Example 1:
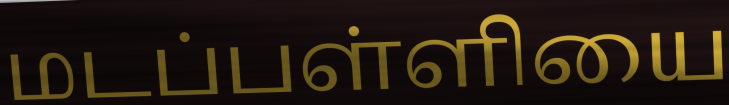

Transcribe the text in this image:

மடப்பள்ளியை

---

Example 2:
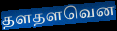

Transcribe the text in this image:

தளதளவென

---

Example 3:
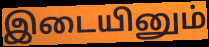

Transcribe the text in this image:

இடையினும்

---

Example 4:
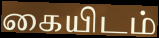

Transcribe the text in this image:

கையிடம்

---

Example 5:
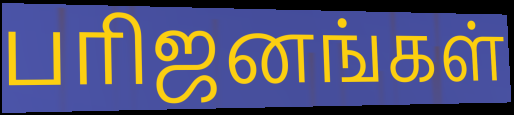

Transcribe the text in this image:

பரிஜனங்கள்